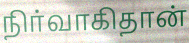
நிர்வாகிதான்